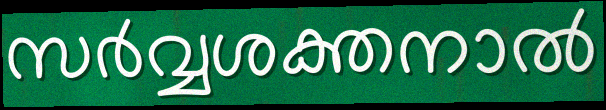
സർവ്വശക്തനാൽ